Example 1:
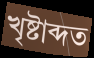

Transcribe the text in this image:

খৃষ্টাব্দত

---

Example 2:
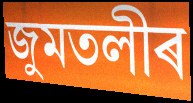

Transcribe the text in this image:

জুমতলীৰ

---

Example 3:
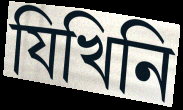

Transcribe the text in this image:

যিখিনি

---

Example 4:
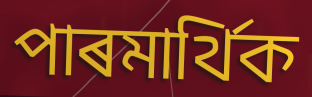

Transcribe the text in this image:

পাৰমাৰ্থিক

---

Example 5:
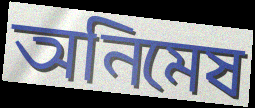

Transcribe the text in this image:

অনিমেষ